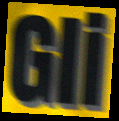
Gli